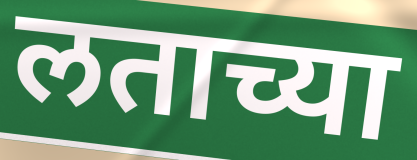
लताच्या